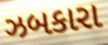
ઝબકારા